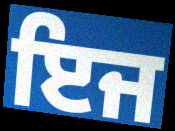
ਇਜ